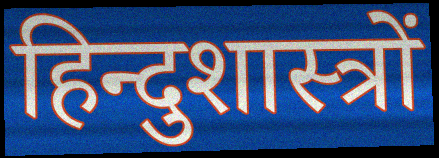
हिन्दुशास्त्रों